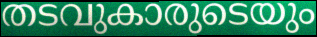
തടവുകാരുടെയും